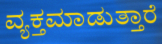
ವ್ಯಕ್ತಮಾಡುತ್ತಾರೆ